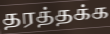
தரத்தக்க